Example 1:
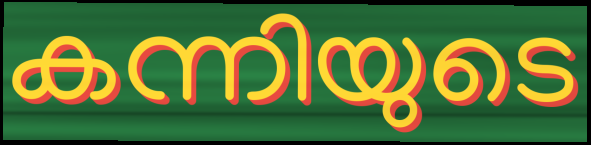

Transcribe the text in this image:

കന്നിയുടെ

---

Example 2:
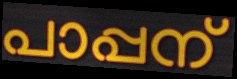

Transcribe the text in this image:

പാപ്പന്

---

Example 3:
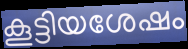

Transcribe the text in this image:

കൂട്ടിയശേഷം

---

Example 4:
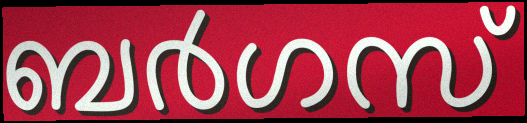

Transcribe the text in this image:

ബർഗസ്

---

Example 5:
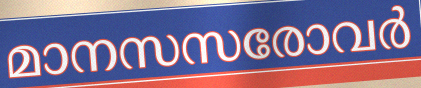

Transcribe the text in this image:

മാനസസരോവർ